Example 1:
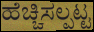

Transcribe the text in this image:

ಹೆಚ್ಚಿಸಲ್ಪಟ್ಟ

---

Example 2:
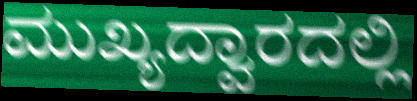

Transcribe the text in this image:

ಮುಖ್ಯದ್ವಾರದಲ್ಲಿ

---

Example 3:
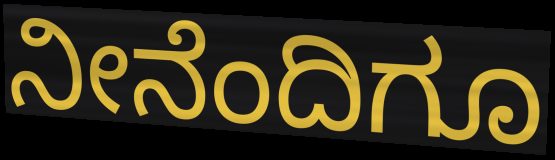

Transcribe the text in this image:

ನೀನೆಂದಿಗೂ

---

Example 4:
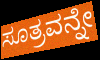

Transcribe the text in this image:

ಸೂತ್ರವನ್ನೇ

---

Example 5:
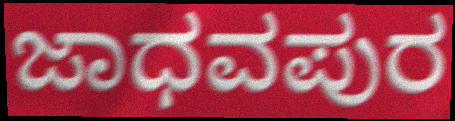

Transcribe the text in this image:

ಜಾಧವಪುರ